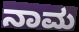
ನಾಮ